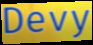
Devy